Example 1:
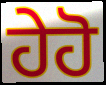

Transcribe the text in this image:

ਹੇਹੋ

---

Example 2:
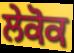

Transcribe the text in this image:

ਲੇਕੋਕ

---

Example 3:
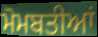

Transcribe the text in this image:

ਮੋਮਬਤੀਆਂ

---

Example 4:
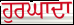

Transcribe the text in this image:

ਹੁਰਘਾਦਾ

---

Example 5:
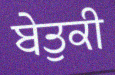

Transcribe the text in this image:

ਬੇਤੁਕੀ